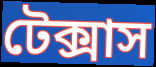
টেক্সাস